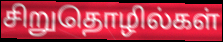
சிறுதொழில்கள்